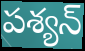
పశ్యన్